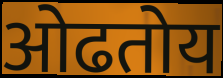
ओढतोय